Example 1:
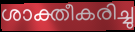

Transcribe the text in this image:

ശാക്തീകരിച്ചു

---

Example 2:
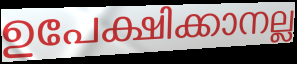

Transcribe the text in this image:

ഉപേക്ഷിക്കാനല്ല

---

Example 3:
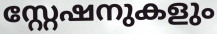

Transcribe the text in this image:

സ്റ്റേഷനുകളും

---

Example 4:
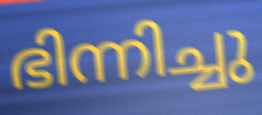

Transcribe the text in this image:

ഭിന്നിച്ചു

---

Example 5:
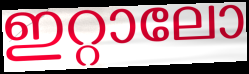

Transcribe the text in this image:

ഇറ്റാലോ